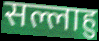
सल्लाहु